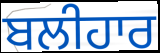
ਬਲੀਹਾਰ